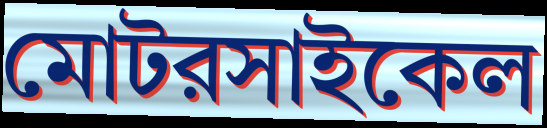
মোটরসাইকেল